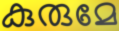
കുരുമേ